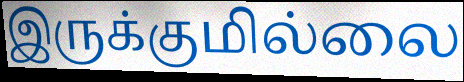
இருக்குமில்லை